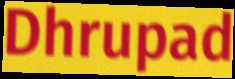
Dhrupad